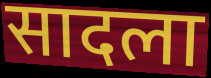
सादला